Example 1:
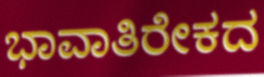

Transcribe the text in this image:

ಭಾವಾತಿರೇಕದ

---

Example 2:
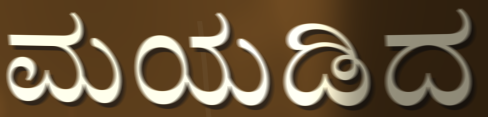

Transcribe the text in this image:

ಮಯಡಿದ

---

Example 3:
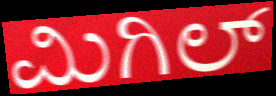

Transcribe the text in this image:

ಮಿಗಿಲ್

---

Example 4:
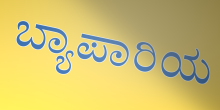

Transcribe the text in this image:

ಬ್ಯಾಪಾರಿಯ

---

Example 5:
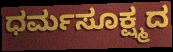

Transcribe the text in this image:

ಧರ್ಮಸೂಕ್ಷ್ಮದ